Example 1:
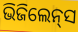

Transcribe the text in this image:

ଭିଜିଲେନ୍‌ସ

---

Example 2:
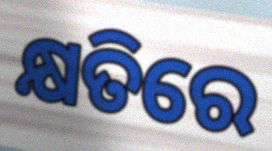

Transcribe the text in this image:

କ୍ଷତିରେ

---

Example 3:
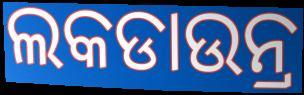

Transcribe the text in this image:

ଲକଡାଉନ୍ର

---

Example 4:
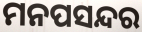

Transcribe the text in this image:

ମନପସନ୍ଦର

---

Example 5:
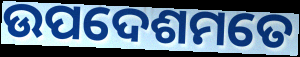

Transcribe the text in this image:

ଉପଦେଶମତେ